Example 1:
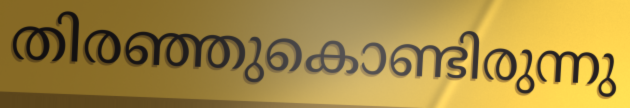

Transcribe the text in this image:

തിരഞ്ഞുകൊണ്ടിരുന്നു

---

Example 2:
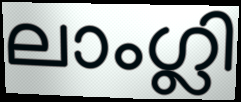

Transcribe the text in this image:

ലാംഗ്ലി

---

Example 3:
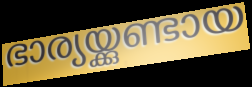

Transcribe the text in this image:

ഭാര്യയ്ക്കുണ്ടായ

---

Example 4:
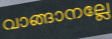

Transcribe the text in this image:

വാങ്ങാനല്ലേ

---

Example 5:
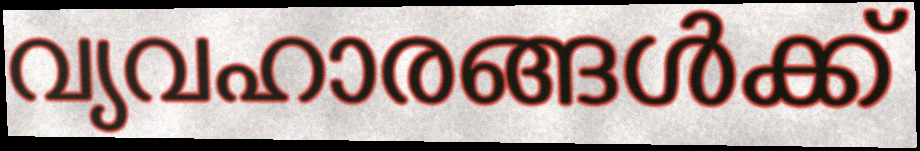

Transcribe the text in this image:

വ്യവഹാരങ്ങൾക്ക്